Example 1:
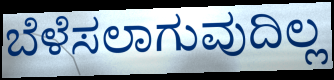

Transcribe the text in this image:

ಬೆಳೆಸಲಾಗುವುದಿಲ್ಲ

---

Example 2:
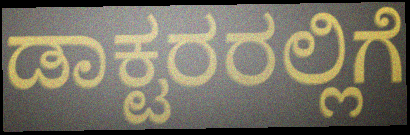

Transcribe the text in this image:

ಡಾಕ್ಟರರಲ್ಲಿಗೆ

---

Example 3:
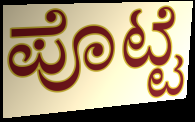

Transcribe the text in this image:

ಪೊಟ್ಟೆ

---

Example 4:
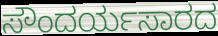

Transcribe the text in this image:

ಸೌಂದರ್ಯಸಾರದ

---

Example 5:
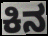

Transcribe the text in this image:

ಕಿನ